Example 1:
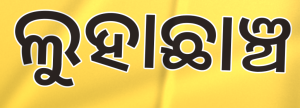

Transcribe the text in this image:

ଲୁହାଛାଞ୍ଚ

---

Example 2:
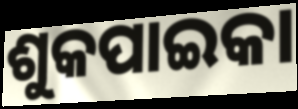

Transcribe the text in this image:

ଶୁକପାଇକା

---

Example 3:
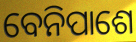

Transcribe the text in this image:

ବେନିପାଶେ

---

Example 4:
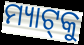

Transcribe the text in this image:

ମ୍ୟାଟ୍‌କୁ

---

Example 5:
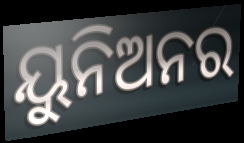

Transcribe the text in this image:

ୟୁନିଅନର